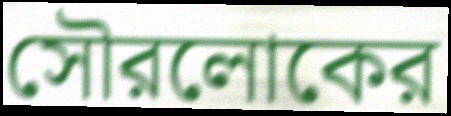
সৌরলোকের